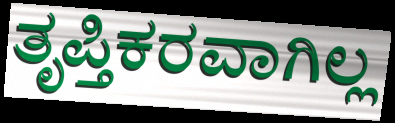
ತೃಪ್ತಿಕರವಾಗಿಲ್ಲ